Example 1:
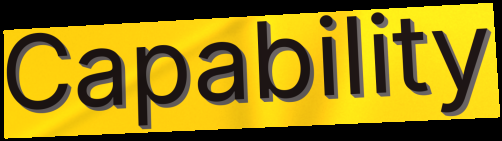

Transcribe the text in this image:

Capability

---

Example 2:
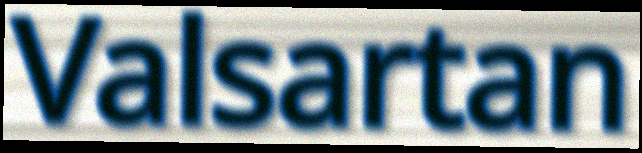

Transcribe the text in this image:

Valsartan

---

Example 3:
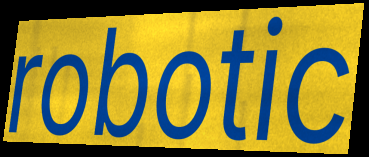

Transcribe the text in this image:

robotic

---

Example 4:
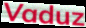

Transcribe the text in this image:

Vaduz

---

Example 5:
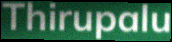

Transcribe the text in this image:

Thirupalu